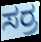
ಸರ್ರ